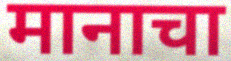
मानाचा